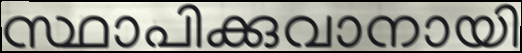
സ്ഥാപിക്കുവാനായി